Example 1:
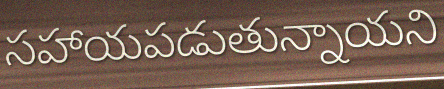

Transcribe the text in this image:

సహాయపడుతున్నాయని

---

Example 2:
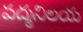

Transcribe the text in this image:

పద్మనిలయ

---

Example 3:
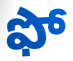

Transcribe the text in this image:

ఫో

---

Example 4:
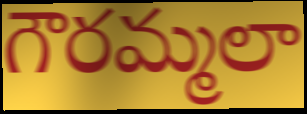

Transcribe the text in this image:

గౌరమ్మలా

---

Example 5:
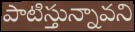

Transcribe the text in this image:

పాటిస్తున్నావని